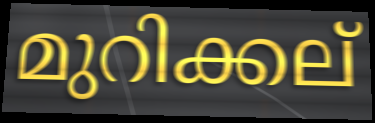
മുറിക്കല്